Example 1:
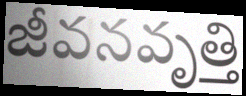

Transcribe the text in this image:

జీవనవృత్తి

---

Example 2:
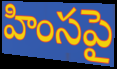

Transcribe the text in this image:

హింసపై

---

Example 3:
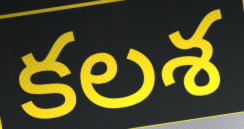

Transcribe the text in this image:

కలశ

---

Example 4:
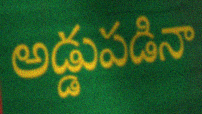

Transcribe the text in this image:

అడ్డుపడినా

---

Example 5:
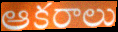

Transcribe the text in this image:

ఆకరాలు